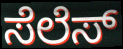
ಸೆಲೆಸ್